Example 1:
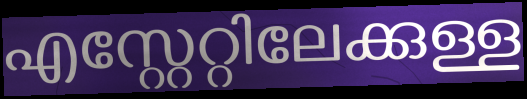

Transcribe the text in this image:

എസ്റ്റേറ്റിലേക്കുള്ള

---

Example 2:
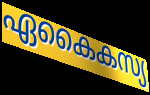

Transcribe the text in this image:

ഏകൈകസ്യ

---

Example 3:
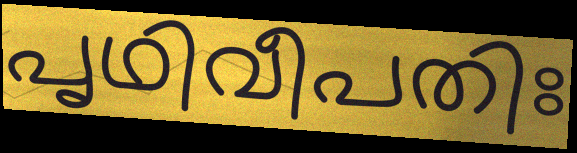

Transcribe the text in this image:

പൃഥിവീപതിഃ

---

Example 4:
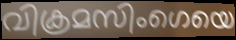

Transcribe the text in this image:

വിക്രമസിംഗെയെ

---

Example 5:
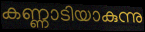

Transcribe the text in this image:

കണ്ണാടിയാകുന്നു